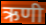
ऋणी